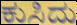
ಕುಸಿದು